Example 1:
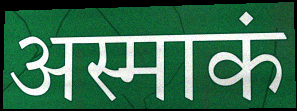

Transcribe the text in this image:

अस्माकं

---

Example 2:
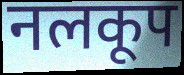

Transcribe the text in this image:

नलकूप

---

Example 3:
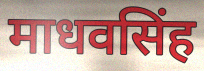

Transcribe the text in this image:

माधवसिंह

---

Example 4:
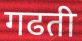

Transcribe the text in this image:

गढती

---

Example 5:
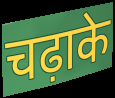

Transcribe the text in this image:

चढ़ाके